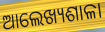
ଆଲେଖ୍ୟଶାଳା